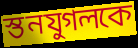
স্তনযুগলকে